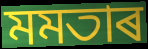
মমতাৰ